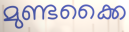
മുണ്ടക്കൈ